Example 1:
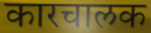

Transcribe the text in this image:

कारचालक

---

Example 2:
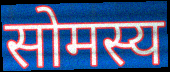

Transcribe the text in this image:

सोमस्य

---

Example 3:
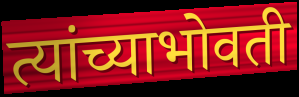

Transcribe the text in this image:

त्यांच्याभोवती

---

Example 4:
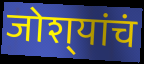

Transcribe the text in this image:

जोश्यांचं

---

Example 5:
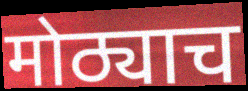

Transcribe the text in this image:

मोठ्याच